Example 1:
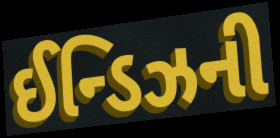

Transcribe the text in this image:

ઈન્ડિઝની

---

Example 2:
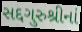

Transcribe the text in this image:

સદ્દગુરુશ્રીનાં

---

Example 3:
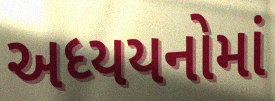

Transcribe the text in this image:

અધ્યયનોમાં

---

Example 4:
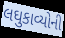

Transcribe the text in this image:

લઘુકાવ્યોની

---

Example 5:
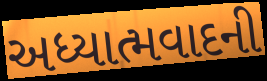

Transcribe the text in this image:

અધ્યાત્મવાદની